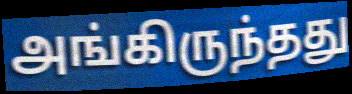
அங்கிருந்தது